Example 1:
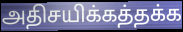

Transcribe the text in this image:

அதிசயிக்கத்தக்க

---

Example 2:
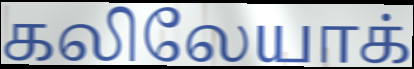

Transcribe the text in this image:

கலிலேயாக்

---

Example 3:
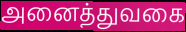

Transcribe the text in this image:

அனைத்துவகை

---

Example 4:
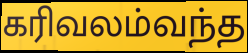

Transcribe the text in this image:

கரிவலம்வந்த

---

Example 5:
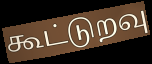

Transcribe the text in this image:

கூட்டுறவு